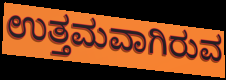
ಉತ್ತಮವಾಗಿರುವ